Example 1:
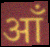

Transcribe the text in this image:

आँ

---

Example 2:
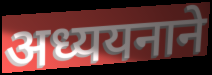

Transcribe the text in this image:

अध्ययनाने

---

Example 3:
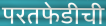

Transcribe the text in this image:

परतफेडीची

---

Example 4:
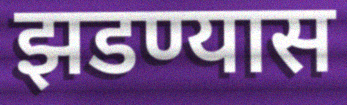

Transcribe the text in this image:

झडण्यास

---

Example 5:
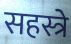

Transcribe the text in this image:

सहस्त्रे